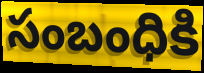
సంబంధికి